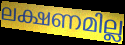
ലക്ഷണമില്ല